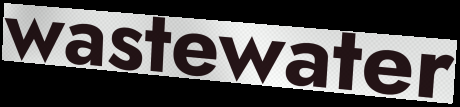
wastewater